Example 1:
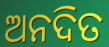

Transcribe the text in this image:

ଅନଦିତ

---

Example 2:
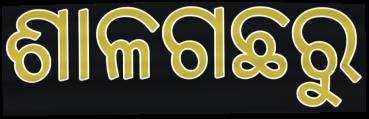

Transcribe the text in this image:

ଶାଳଗଛରୁ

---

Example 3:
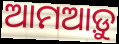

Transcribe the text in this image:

ଆମଆଡ଼ୁ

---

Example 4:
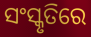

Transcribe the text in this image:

ସଂସ୍କୃତିରେ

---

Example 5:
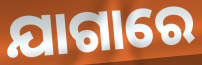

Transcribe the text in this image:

ଯାଗାରେ